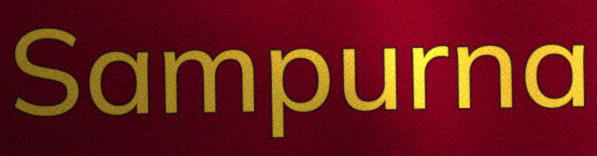
Sampurna